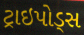
ટ્રાઇપોડ્સ